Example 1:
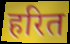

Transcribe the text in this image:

हरित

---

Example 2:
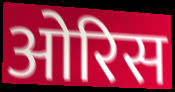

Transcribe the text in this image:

ओरिस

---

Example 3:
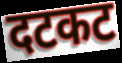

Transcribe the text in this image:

दटकट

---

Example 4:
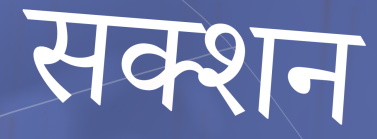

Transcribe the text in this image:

सक्शन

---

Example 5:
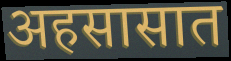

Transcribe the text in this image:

अहसासात